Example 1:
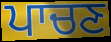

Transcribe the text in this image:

ਪਾਚਣ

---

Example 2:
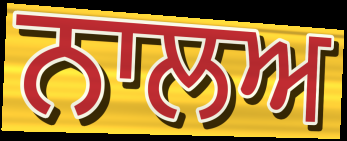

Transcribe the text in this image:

ਨਾਲਅ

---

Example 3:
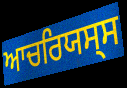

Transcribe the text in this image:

ਆਚਰਿਯਸ੍ਸ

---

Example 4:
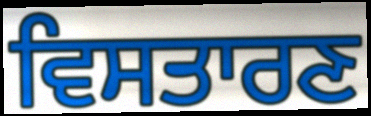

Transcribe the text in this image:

ਵਿਸਤਾਰਣ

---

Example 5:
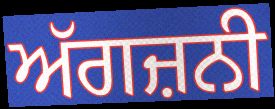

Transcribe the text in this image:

ਅੱਗਜ਼ਨੀ